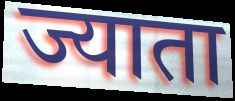
ज्याता